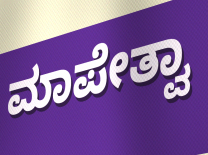
ಮಾಪೇತ್ವಾ